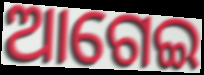
ଆଗେଇ